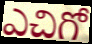
ఎచిగో